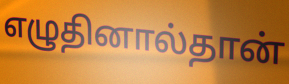
எழுதினால்தான்